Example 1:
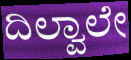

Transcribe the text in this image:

ದಿಲ್ವಾಲೇ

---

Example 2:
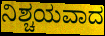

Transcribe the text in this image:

ನಿಶ್ಚಯವಾದ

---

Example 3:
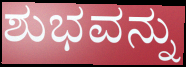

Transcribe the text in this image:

ಶುಭವನ್ನು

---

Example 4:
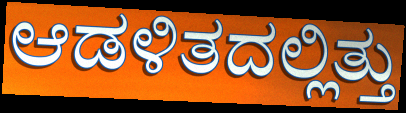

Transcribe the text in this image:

ಆಡಳಿತದಲ್ಲಿತ್ತು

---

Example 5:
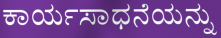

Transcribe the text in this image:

ಕಾರ್ಯಸಾಧನೆಯನ್ನು